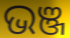
ଭଞ୍ଜ